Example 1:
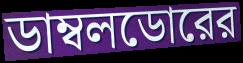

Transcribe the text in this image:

ডাম্বলডোরের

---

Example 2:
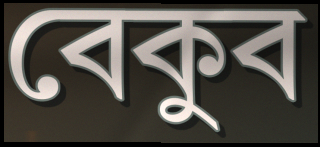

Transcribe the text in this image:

বেকুব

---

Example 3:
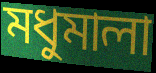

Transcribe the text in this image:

মধুমালা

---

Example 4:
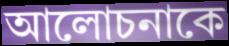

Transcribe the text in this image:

আলোচনাকে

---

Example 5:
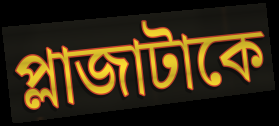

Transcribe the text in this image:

প্লাজাটাকে